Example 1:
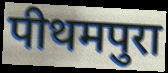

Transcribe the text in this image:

पीथमपुरा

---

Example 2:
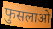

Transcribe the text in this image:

फुसलाओ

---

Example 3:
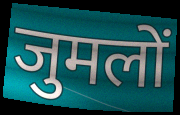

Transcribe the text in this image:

जुमलों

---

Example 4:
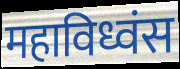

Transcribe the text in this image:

महाविध्वंस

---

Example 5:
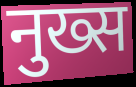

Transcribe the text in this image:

नुख्स